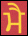
ਮੈ